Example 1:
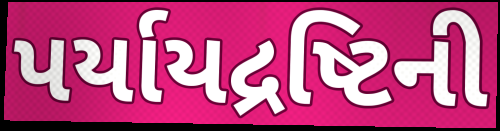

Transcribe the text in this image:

પર્યાયદ્રષ્ટિની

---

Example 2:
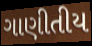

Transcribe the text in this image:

ગાણીતીય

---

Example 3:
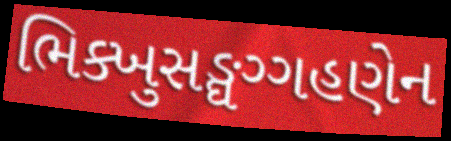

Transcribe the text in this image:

ભિક્ખુસઙ્ઘગ્ગહણેન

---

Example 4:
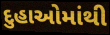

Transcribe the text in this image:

દુહાઓમાંથી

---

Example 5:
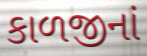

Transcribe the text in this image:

કાળજીનાં